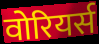
वोरियर्स